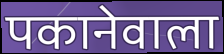
पकानेवाला